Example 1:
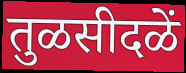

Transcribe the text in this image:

तुळसीदळें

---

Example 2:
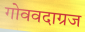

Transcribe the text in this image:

गोववदाग्रज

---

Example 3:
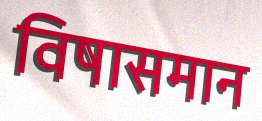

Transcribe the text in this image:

विषासमान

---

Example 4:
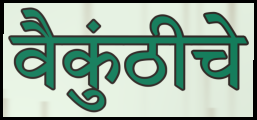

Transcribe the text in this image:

वैकुंठीचे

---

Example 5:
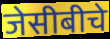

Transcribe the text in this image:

जेसीबीचे